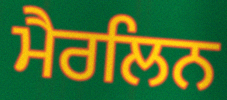
ਮੈਰਲਿਨ